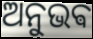
ଅନୁଭଵ